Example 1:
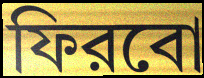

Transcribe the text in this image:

ফিরবো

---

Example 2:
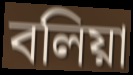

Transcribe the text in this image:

বলিয়া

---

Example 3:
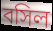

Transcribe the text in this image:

বসিল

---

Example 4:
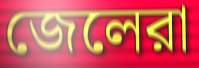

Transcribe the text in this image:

জেলেরা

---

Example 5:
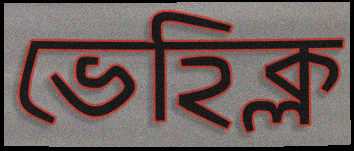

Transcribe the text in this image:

ভেহিক্ল